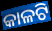
କାଳଟି